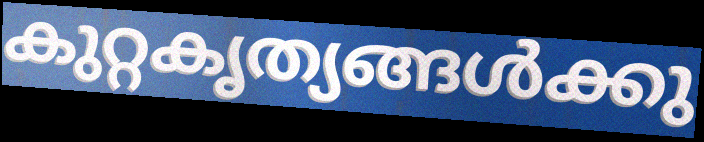
കുറ്റകൃത്യങ്ങൾക്കു